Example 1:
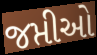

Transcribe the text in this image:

જપ્તીઓ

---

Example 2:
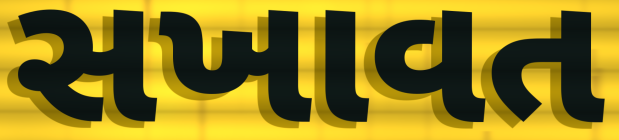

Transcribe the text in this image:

સખાવત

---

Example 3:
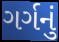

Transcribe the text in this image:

ગર્ગનું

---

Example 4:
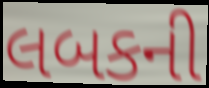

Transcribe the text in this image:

લબકની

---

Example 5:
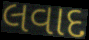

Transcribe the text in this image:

લવાદ